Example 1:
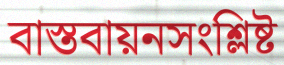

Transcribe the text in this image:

বাস্তবায়নসংশ্লিষ্ট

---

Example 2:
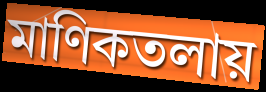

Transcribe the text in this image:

মাণিকতলায়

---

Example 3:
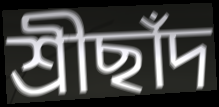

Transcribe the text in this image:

শ্রীছাঁদ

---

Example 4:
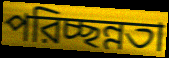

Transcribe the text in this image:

পরিচ্ছন্নতা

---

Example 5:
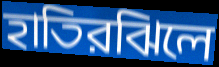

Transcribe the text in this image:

হাতিরঝিলে